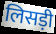
लिसड़ी